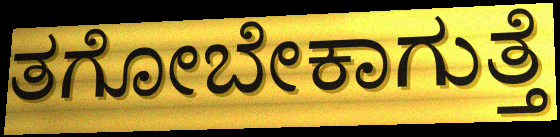
ತಗೋಬೇಕಾಗುತ್ತೆ